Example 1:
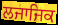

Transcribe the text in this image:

ਲਜਾਜਿਕ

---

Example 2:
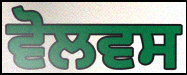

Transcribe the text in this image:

ਵੋਲਵਸ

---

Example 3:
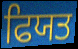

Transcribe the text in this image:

ਫਿਯਤ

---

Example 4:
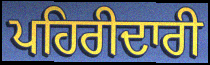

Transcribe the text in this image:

ਪਹਿਰੀਦਾਰੀ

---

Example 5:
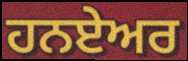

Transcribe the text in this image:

ਹਨਏਅਰ